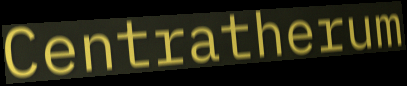
Centratherum